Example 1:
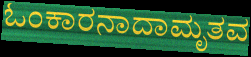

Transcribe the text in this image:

ಓಂಕಾರನಾದಾಮೃತವ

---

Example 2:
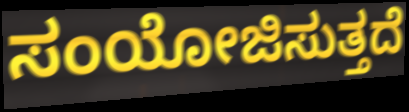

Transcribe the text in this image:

ಸಂಯೋಜಿಸುತ್ತದೆ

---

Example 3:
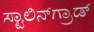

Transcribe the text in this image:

ಸ್ಟಾಲಿನ್‌ಗ್ರಾಡ್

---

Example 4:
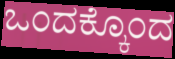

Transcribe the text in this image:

ಒಂದಕ್ಕೊಂದ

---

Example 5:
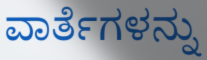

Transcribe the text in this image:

ವಾರ್ತೆಗಳನ್ನು